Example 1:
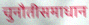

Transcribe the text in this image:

चुनौतीसमाधान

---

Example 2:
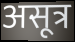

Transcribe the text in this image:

असूत्र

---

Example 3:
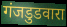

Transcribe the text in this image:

गंजडुडवारा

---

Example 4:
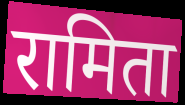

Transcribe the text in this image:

रामिता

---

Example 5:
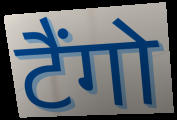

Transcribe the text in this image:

टैंगो